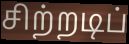
சிற்றடிப்